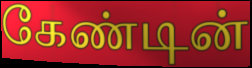
கேண்டின்